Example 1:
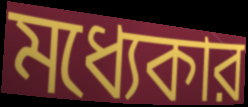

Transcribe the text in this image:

মধ্যেকার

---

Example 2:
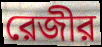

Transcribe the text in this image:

রেজীর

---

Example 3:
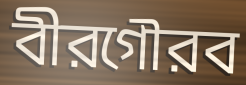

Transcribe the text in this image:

বীরগৌরব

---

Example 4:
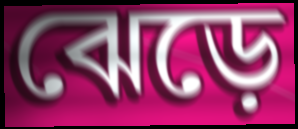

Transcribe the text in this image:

ঝেড়ে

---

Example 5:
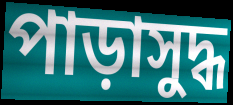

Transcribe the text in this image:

পাড়াসুদ্ধ